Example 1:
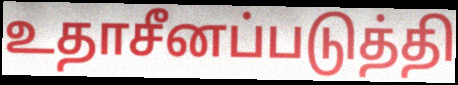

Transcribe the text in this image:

உதாசீனப்படுத்தி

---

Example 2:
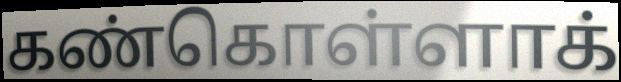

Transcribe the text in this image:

கண்கொள்ளாக்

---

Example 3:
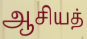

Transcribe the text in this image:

ஆசியத்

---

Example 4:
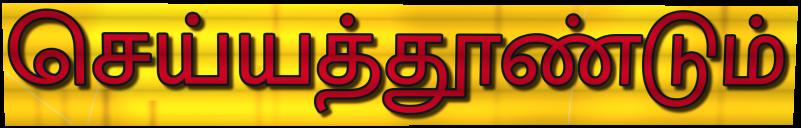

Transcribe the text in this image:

செய்யத்தூண்டும்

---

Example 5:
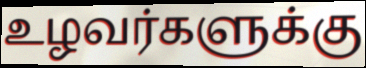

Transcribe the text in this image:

உழவர்களுக்கு